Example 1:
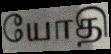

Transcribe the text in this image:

யோதி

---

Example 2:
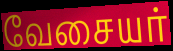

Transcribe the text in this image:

வேசையர்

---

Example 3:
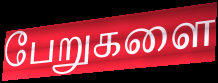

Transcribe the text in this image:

பேறுகளை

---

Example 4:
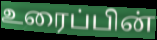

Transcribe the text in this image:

உரைப்பின்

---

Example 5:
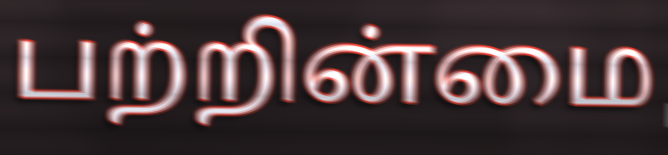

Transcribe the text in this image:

பற்றின்மை